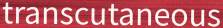
transcutaneous